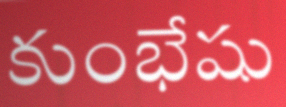
కుంభేషు